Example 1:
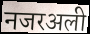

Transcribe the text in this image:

नजरअली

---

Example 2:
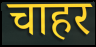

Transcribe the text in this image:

चाहर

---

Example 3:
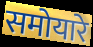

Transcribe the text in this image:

समोयारे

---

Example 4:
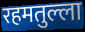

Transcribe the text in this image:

रहमतुल्ला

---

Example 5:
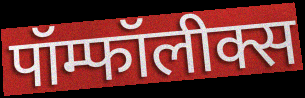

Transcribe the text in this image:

पॉम्फॉलीक्स